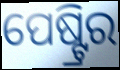
ପେଷ୍ଟ୍ରିର